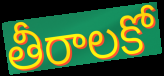
తీరాలకో